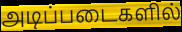
அடிப்படைகளில்